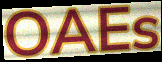
OAEs